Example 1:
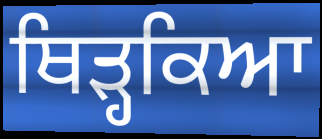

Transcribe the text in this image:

ਥਿੜ੍ਹਕਿਆ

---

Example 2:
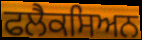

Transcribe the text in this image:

ਫਲੈਕਸਿਅਨ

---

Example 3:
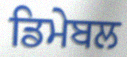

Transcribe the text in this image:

ਡਿਮੇਬਲ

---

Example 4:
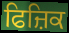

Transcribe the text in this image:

ਫਿਜ਼ਿਕ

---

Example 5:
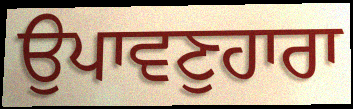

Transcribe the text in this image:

ਉਪਾਵਣੁਹਾਰਾ